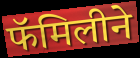
फॅमिलीने